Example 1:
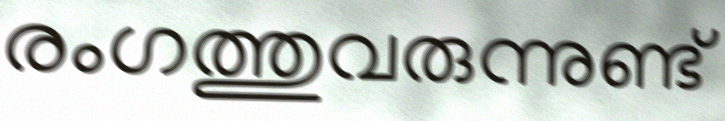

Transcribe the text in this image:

രംഗത്തുവരുന്നുണ്ട്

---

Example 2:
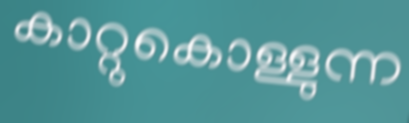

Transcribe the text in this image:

കാറ്റുകൊള്ളുന്ന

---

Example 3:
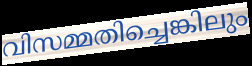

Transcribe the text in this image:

വിസമ്മതിച്ചെങ്കിലും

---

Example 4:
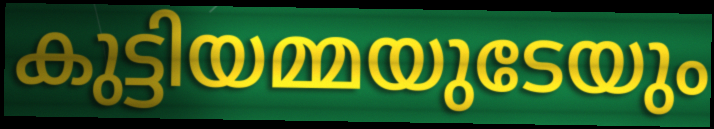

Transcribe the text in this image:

കുട്ടിയമ്മയുടേയും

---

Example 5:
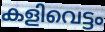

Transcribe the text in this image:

കളിവെട്ടം